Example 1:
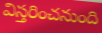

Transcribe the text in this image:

విస్తరించనుంది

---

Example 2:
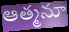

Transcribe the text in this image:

ఆత్మనూ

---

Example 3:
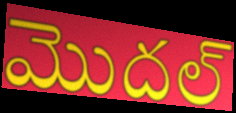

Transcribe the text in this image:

మొదల్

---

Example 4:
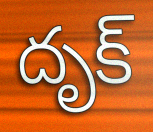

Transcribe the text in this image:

దృక్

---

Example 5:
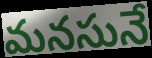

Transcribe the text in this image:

మనసునే